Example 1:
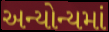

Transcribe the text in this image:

અન્યોન્યમાં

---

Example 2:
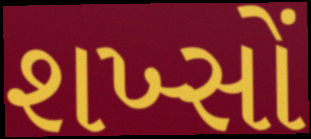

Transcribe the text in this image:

શખ્સોં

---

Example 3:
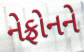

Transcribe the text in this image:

નેફ્રોનને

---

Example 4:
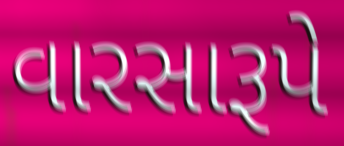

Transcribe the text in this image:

વારસારૂપે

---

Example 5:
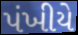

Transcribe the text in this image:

પંખીયે